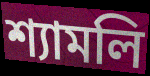
শ্যামলি